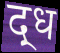
द्ध